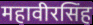
महावीरसिंह